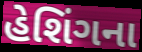
હેશિંગના